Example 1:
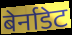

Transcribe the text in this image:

बेर्नाडेट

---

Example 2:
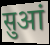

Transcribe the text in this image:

सुआं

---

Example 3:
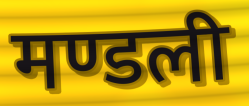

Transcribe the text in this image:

मण्डली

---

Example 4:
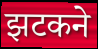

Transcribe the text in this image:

झटकने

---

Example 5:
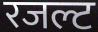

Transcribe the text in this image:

रजल्ट